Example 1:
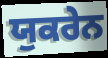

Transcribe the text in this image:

ਯੁਕਰੇਨ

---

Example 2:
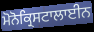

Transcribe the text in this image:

ਮੋਨੋਕ੍ਰਿਸਟਾਲਾਈਨ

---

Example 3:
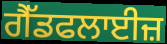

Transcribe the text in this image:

ਗੈੱਡਫਲਾਈਜ਼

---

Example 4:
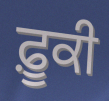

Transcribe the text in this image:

ਫ਼ੂਕੀ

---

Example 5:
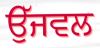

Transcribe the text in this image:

ਉੱਜਵਲ